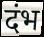
दंभ